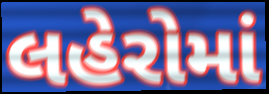
લહેરોમાં